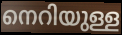
നെറിയുള്ള